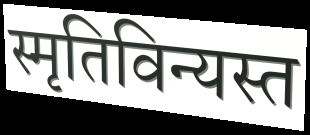
स्मृतिविन्यस्त